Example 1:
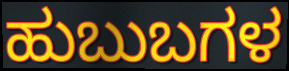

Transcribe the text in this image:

ಹುಬುಬಗಳ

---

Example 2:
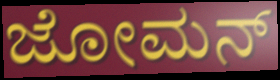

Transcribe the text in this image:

ಜೋಮನ್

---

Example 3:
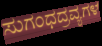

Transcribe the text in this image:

ಸುಗಂಧದ್ರವ್ಯಗಳ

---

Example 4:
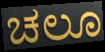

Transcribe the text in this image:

ಚಲೂ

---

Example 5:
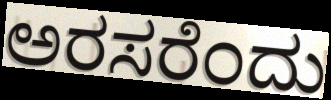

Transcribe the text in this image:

ಅರಸರೆಂದು